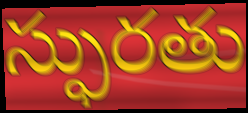
స్ఫురతు